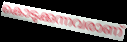
കൊടുക്കുന്നവരാണ്